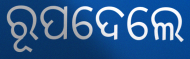
ରୂପଦେଲେ